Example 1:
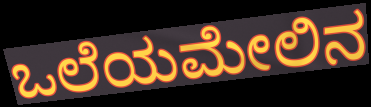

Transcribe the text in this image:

ಒಲೆಯಮೇಲಿನ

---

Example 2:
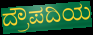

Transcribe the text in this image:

ದ್ರೌಪದಿಯ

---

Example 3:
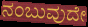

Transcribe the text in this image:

ನಂಬುವುದೇ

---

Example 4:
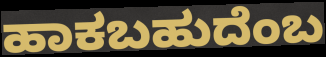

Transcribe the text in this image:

ಹಾಕಬಹುದೆಂಬ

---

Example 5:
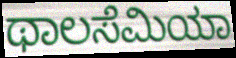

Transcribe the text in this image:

ಥಾಲಸೆಮಿಯಾ